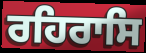
ਰਹਿਰਾਸਿ